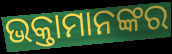
ଭକ୍ତାମାନଙ୍କର